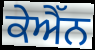
ਕੇਐੱਨ